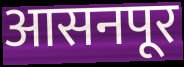
आसनपूर